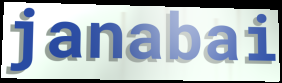
janabai